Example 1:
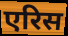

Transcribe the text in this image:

एरिस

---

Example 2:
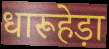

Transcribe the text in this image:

धारूहेड़ा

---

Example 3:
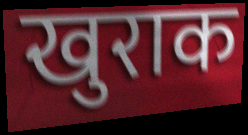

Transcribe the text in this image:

खुराक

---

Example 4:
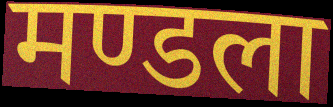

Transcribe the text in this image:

मण्डला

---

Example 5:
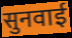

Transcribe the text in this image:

सुनवाई